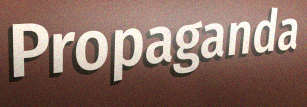
Propaganda